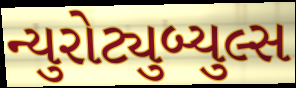
ન્યુરોટ્યુબ્યુલ્સ